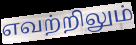
எவற்றிலும்